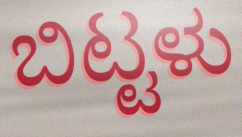
ಬಿಟ್ಟಳು